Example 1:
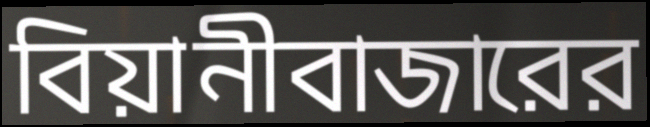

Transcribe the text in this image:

বিয়ানীবাজারের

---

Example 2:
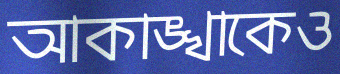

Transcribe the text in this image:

আকাঙ্খাকেও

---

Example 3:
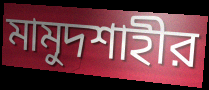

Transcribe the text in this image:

মামুদশাহীর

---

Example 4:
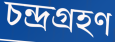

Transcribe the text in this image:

চন্দ্রগ্রহণ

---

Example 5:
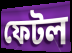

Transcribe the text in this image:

ফেটল